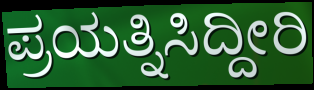
ಪ್ರಯತ್ನಿಸಿದ್ದೀರಿ